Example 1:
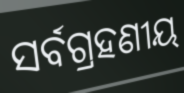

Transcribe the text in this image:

ସର୍ବଗ୍ରହଣୀୟ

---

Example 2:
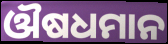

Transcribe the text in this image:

ଔଷଧମାନ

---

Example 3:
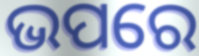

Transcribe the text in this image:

ଭପରେ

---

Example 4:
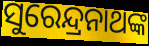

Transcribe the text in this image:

ସୁରେନ୍ଦ୍ରନାଥଙ୍କ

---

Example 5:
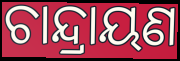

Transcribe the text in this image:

ଚାନ୍ଦ୍ରାୟଣ